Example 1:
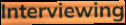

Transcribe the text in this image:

Interviewing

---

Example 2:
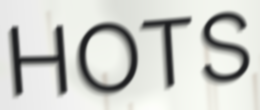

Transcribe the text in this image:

HOTS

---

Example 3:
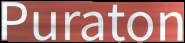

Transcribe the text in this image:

Puraton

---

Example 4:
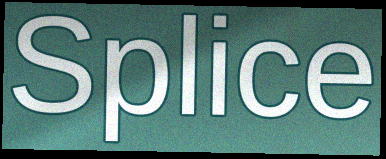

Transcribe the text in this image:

Splice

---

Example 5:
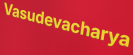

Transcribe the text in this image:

Vasudevacharya